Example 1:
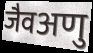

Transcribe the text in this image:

जैवअणु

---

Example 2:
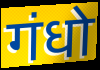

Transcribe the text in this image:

गंधो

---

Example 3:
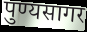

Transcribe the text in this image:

पुण्यसागर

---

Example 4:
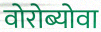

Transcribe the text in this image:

वोरोब्योवा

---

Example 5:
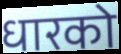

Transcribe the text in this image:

धारको